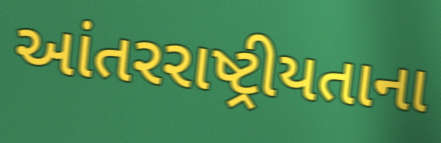
આંતરરાષ્ટ્રીયતાના